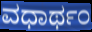
ವಧಾರ್ಥಂ